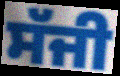
ਸੱਜੀ